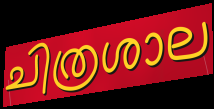
ചിത്രശാല